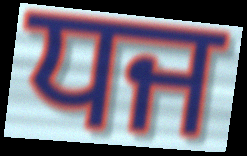
ਧਜ